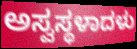
ಅಸ್ವಸ್ಥಳಾದಳು